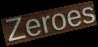
Zeroes